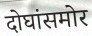
दोघांसमोर